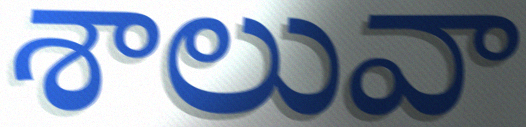
శాలువా